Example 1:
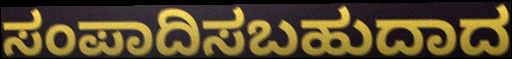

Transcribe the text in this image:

ಸಂಪಾದಿಸಬಹುದಾದ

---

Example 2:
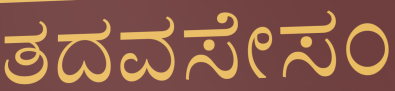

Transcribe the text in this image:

ತದವಸೇಸಂ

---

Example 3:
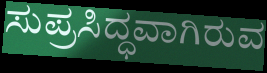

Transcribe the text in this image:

ಸುಪ್ರಸಿದ್ಧವಾಗಿರುವ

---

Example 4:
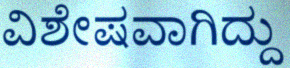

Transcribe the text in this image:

ವಿಶೇಷವಾಗಿದ್ದು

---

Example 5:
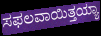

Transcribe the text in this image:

ಸಫಲವಾಯಿತ್ತಯ್ಯಾ